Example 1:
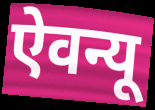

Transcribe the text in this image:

ऐवन्यू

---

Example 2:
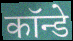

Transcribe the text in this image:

कॉन्डे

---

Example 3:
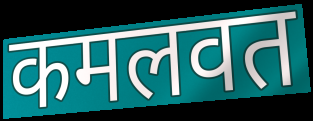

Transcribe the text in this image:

कमलवत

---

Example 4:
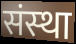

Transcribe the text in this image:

संस्‍था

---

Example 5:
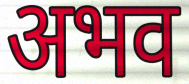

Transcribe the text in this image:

अभव